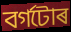
বৰ্গটোৰ